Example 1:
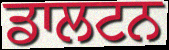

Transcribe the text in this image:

ਡਾਲਟਨ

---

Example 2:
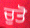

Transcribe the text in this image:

ਚੁਤੋ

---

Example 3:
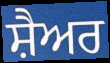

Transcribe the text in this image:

ਸ਼ੈਅਰ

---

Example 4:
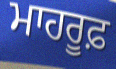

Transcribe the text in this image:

ਮਾਹਰੂਫ਼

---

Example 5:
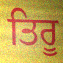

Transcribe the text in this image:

ਤਿਰੂ